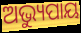
ଅଭ୍ୟୁପାୟ